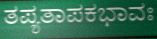
ತಪ್ಯತಾಪಕಭಾವಃ